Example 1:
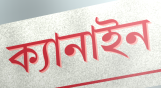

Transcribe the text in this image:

ক্যানাইন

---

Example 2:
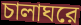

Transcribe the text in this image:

চালাঘরে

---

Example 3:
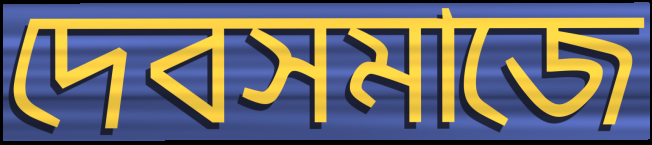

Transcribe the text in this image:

দেবসমাজে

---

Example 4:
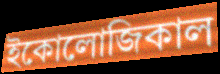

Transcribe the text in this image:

ইকোলোজিকাল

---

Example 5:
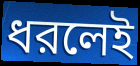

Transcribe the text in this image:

ধরলেই